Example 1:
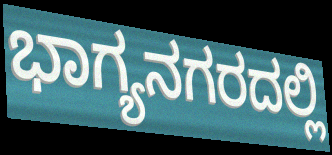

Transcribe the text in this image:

ಭಾಗ್ಯನಗರದಲ್ಲಿ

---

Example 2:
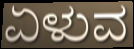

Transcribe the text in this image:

ಏಳುವ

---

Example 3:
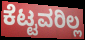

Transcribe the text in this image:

ಕೆಟ್ಟವರಿಲ್ಲ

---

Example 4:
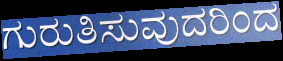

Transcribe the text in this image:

ಗುರುತಿಸುವುದರಿಂದ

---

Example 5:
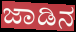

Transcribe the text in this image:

ಜಾಡಿನ